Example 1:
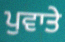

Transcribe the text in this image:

ਪੁਵਾਤੇ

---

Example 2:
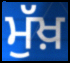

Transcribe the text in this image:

ਮੁੱਖ਼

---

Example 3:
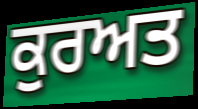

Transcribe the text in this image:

ਕੁਰਅਤ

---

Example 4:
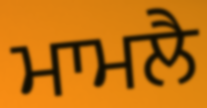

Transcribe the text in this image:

ਮਾਮਲੈ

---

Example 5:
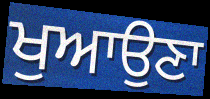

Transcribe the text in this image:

ਖੁਆਉਣਾ